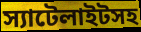
স্যাটেলাইটসহ